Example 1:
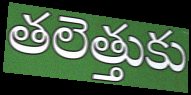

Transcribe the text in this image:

తలెత్తుకు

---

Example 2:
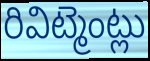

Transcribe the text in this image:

రివిట్మెంట్లు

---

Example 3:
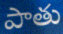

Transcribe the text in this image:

పాతు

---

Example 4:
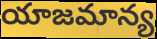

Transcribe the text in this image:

యాజమాన్య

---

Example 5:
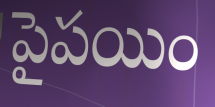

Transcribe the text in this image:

పైపయిం